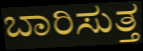
ಬಾರಿಸುತ್ತ